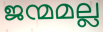
ജന്മമല്ല